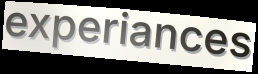
experiances